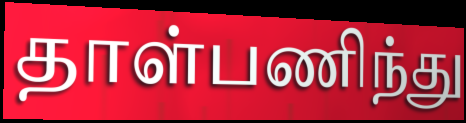
தாள்பணிந்து